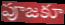
పూజకూ